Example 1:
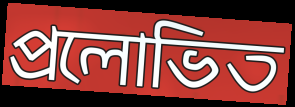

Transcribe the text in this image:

প্ৰলোভিত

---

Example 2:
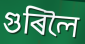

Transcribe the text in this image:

গুৰিলৈ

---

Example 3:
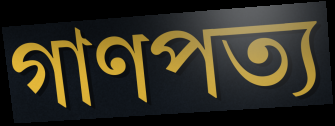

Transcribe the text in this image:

গাণপত্য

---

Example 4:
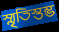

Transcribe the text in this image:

স্মৃতিস্তম্ভ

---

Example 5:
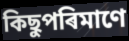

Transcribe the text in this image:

কিছুপৰিমাণে